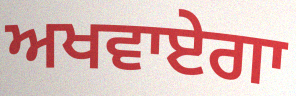
ਅਖਵਾਏਗਾ